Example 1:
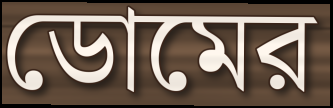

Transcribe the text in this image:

ডোমের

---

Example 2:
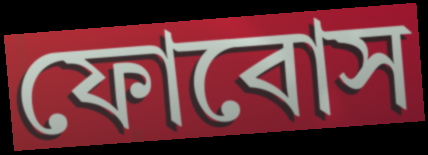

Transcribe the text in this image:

ফোবোস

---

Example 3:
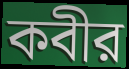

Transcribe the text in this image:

কবীর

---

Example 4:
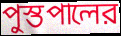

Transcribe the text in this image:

পুস্তপালের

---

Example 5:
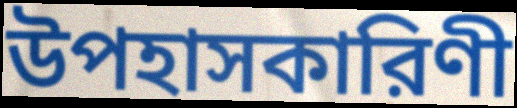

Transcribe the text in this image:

উপহাসকারিণী